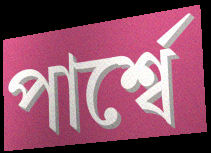
পার্শ্বে